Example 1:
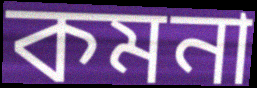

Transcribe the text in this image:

কমনা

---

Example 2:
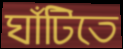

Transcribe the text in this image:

ঘাঁটিতে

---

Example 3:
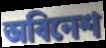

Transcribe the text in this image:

অবিনেশ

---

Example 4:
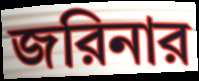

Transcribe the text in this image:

জরিনার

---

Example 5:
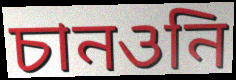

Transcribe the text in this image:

চানওনি